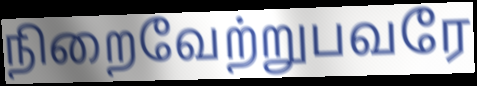
நிறைவேற்றுபவரே